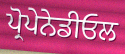
ਪ੍ਰੋਪੇਨੇਡੀਓਲ